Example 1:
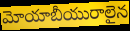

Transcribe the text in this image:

మోయాబీయురాలైన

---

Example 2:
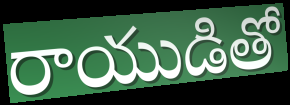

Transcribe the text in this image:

రాయుడితో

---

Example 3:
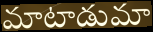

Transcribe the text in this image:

మాటాడుమా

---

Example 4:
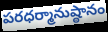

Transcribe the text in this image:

పరధర్మానుష్ఠానం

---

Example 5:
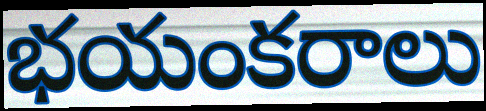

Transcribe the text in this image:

భయంకరాలు